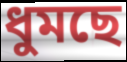
ধুমছে